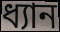
ধ্যান